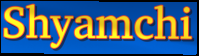
Shyamchi